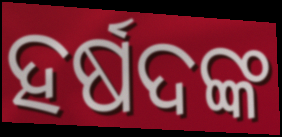
ହର୍ଷଦଙ୍କ